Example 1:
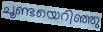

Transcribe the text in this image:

ചൂണ്ടയെറിഞ്ഞു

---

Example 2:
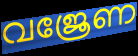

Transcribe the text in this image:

വജ്രേണ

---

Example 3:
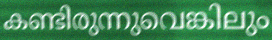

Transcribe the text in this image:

കണ്ടിരുന്നുവെങ്കിലും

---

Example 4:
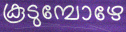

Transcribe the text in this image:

കൂടുമ്പോഴേ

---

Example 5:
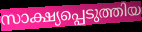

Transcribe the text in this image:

സാക്ഷ്യപ്പെടുത്തിയ